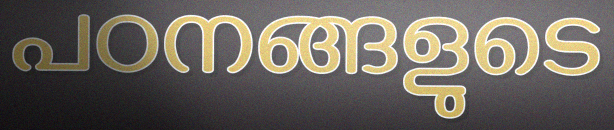
പഠനങ്ങളുടെ